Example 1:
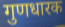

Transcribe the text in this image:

गुणधारक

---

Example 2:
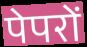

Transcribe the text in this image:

पेपरों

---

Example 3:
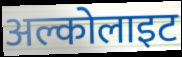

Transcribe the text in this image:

अल्कोलाइट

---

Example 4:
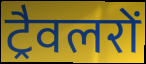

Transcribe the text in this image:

ट्रैवलरों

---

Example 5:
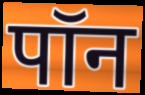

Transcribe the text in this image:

पॉन